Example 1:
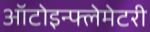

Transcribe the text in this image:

ऑटोइन्फ्लेमेटरी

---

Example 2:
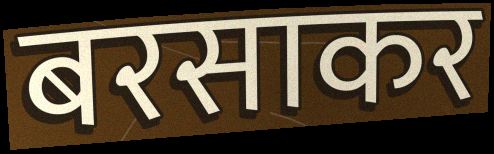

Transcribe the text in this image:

बरसाकर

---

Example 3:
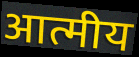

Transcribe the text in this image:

आत्मीय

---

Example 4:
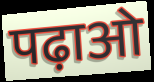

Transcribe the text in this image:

पढ़ाओ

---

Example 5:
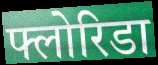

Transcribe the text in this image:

फ्लोरिडा